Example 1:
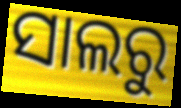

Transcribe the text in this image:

ସାଲରୁ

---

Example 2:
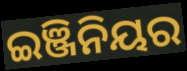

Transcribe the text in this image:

ଇଞ୍ଜିନିୟର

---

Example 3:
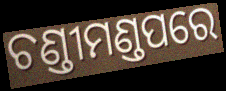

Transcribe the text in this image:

ଚଣ୍ଡୀମଣ୍ଡପରେ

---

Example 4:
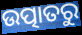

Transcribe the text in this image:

ଉତ୍ପାତରୁ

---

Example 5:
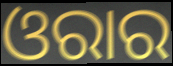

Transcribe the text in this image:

ଓରାର